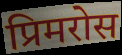
प्रिमरोस